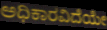
ಅಧಿಕಾರವಿದೆಯೇ